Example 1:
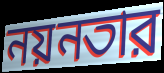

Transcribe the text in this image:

নয়নতার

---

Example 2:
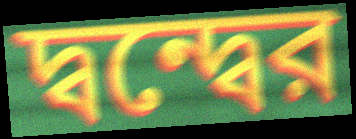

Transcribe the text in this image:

দ্বন্দ্বের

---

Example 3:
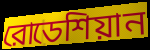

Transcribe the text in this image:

রোডেশিয়ান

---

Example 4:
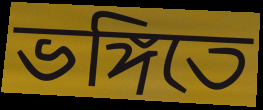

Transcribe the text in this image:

ভঙ্গিতে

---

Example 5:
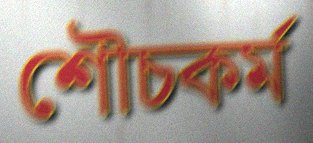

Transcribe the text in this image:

শৌচকর্ম